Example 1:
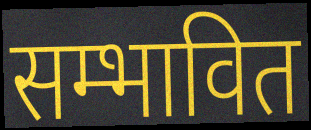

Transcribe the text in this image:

सम्भावित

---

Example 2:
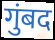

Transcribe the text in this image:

गुंबद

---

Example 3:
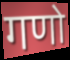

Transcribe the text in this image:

गणो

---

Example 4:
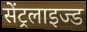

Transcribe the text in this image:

सेंट्रलाइज्ड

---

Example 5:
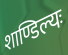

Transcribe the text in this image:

शाण्डिल्यः